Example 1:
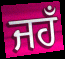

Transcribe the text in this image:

ਜਹਁ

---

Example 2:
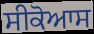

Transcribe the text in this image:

ਸੀਕੋਆਸ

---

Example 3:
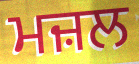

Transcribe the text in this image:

ਮਜ਼ਲ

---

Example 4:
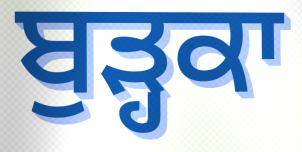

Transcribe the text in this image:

ਬੁੜ੍ਹਕਾ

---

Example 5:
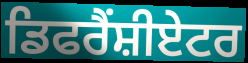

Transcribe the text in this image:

ਡਿਫਰੈਂਸ਼ੀਏਟਰ